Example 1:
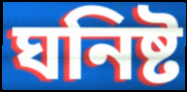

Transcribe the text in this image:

ঘনিষ্ট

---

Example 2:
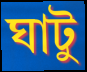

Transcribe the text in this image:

ঘাটু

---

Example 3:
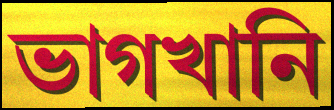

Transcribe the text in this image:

ভাগখানি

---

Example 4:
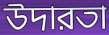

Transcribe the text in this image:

উদারতা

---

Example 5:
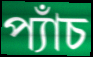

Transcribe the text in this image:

প্যাঁচ